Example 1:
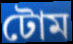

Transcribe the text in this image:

টোম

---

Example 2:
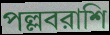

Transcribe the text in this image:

পল্লবরাশি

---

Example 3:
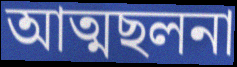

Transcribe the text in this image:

আত্মছলনা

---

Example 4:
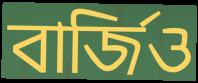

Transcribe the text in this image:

বার্জিও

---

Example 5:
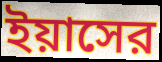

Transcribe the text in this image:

ইয়াসের